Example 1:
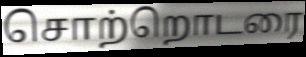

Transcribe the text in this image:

சொற்றொடரை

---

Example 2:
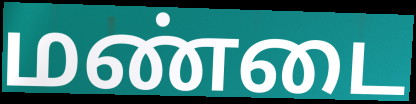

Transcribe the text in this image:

மண்டை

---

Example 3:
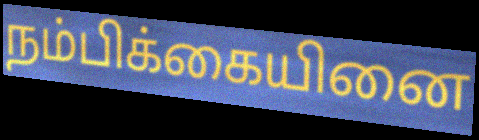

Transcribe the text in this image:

நம்பிக்கையினை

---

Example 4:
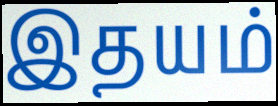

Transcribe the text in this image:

இதயம்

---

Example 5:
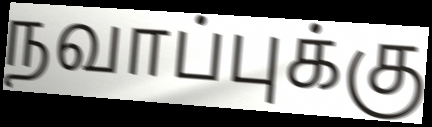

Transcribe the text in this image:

நவாப்புக்கு